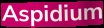
Aspidium